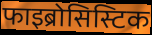
फाइब्रोसिस्टिक